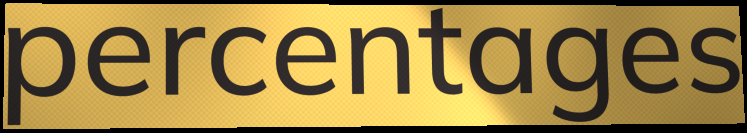
percentages